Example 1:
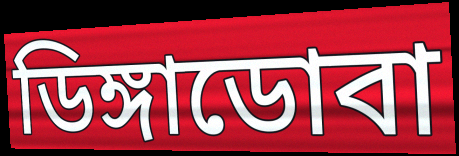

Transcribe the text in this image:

ডিঙ্গাডোবা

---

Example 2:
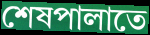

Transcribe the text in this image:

শেষপালাতে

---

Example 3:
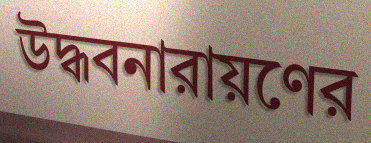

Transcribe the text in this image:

উদ্ধবনারায়ণের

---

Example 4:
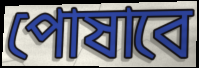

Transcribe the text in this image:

পোষাবে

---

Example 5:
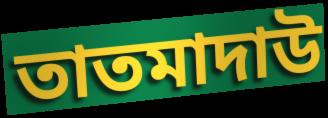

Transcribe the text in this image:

তাতমাদাউ